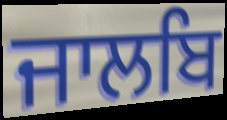
ਜਾਲਬਿ